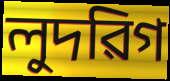
লুদৱিগ